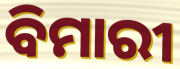
ବିମାରୀ